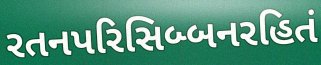
રતનપરિસિબ્બનરહિતં